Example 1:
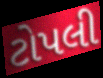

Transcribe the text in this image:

ટોપલી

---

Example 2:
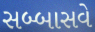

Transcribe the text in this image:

સબ્બાસવે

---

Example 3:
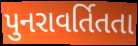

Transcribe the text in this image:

પુનરાવર્તિતતા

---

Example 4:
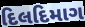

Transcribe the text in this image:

દિલદિમાગ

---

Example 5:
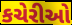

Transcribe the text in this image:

કચેરીઓ